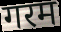
गरम